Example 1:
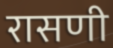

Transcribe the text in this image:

रासणी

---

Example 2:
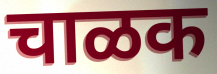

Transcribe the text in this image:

चाळक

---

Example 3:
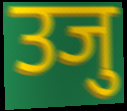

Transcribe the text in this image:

उजु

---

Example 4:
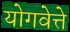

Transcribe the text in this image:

योगवेत्ते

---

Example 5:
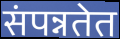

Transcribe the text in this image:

संपन्नतेत